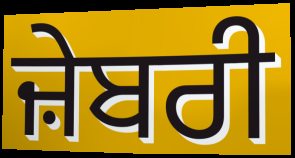
ਜ਼ੇਬਰੀ